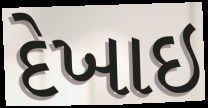
દેખાઇ